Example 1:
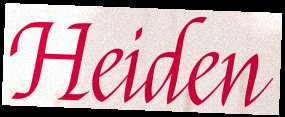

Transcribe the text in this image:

Heiden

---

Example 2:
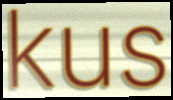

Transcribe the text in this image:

kus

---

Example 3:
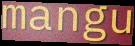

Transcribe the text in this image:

mangu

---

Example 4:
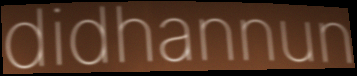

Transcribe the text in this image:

didhannun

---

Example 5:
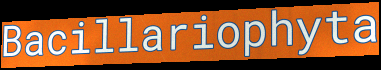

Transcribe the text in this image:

Bacillariophyta